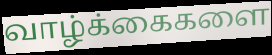
வாழ்க்கைகளை